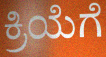
ಕ್ರಿಯೆಗೆ